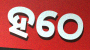
ହଠେ